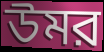
উমর